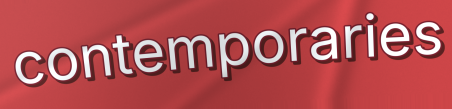
contemporaries